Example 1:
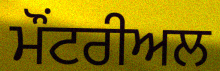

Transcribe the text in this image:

ਮੌਂਟਰੀਅਲ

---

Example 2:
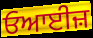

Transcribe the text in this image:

ਓਆਈਜ਼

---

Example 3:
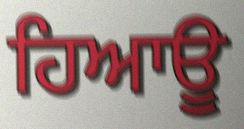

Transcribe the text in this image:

ਹਿਆਊ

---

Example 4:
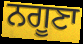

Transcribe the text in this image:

ਨਗੂਣਾ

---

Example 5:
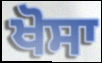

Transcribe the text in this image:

ਖੋਸਾ